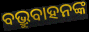
ବଭ୍ରୁବାହନଙ୍କ